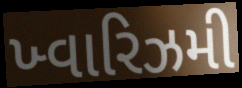
ખ્વારિઝમી